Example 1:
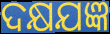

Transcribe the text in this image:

ଦକ୍ଷଯଜ୍ଞ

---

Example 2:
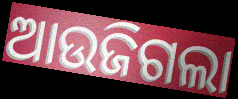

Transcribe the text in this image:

ଆଉଜିଗଲା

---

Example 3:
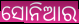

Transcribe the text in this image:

ସୋନିଆର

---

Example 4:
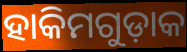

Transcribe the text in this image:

ହାକିମଗୁଡ଼ାକ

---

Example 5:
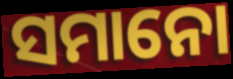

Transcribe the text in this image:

ସମାନୋ